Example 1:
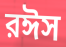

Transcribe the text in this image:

রঈস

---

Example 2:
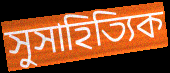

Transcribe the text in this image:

সুসাহিত্যিক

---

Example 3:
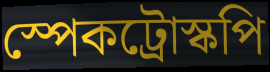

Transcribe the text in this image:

স্পেকট্রোস্কপি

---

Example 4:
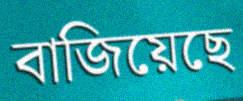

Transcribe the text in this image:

বাজিয়েছে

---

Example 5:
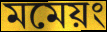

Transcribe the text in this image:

মমেয়ং